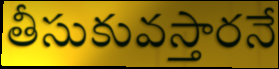
తీసుకువస్తారనే